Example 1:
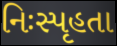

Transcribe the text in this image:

નિઃસ્પૃહતા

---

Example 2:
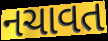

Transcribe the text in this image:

નચાવત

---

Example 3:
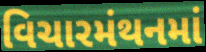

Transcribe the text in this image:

વિચારમંથનમાં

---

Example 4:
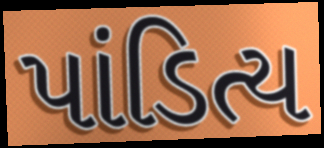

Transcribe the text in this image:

પાંડિત્ય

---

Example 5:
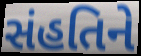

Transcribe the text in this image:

સંહતિને